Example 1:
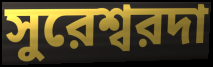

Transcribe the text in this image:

সুরেশ্বরদা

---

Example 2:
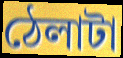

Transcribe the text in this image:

ঠেলাটা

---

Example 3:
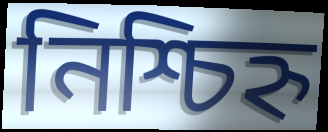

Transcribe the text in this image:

নিশ্চিহ্ন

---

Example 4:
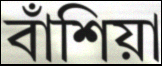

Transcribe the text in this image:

বাঁশিয়া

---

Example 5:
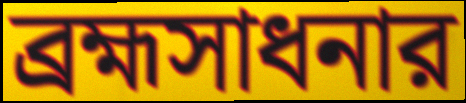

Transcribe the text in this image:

ব্রহ্মসাধনার